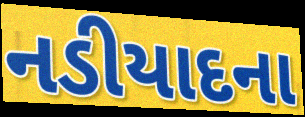
નડીયાદના